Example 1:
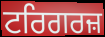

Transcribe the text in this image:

ਟਰਿਗਰਜ਼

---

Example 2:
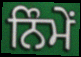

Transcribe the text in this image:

ਨਿੰਮੇਂ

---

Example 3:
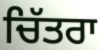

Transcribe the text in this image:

ਚਿੱਤਰਾ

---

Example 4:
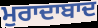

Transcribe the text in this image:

ਮੁਰਾਦਾਬਾਦ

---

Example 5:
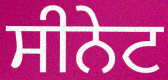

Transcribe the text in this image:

ਸੀਨੇਟ